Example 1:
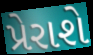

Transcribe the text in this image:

પ્રેરાશે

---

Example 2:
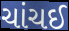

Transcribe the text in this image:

ચાંચઈ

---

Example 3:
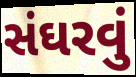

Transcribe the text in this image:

સંઘરવું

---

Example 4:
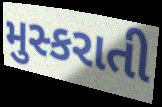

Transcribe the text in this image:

મુસ્કરાતી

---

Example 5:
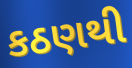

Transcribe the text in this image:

કઠણથી